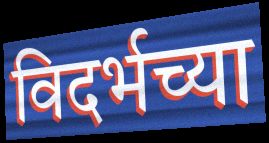
विदर्भच्या